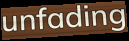
unfading